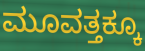
ಮೂವತ್ತಕ್ಕೂ